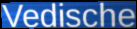
Vedische